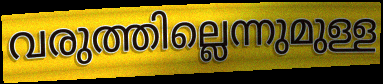
വരുത്തില്ലെന്നുമുള്ള